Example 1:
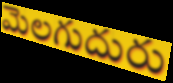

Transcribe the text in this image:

మెలగుదురు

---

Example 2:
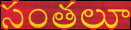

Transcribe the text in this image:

సంతలూ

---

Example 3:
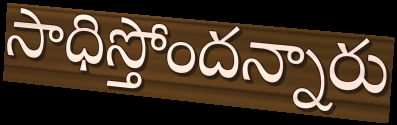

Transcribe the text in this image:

సాధిస్తోందన్నారు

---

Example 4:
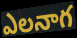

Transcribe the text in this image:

ఎలనాగ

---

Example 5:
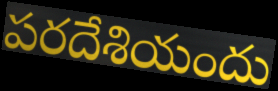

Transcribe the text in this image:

పరదేశియందు